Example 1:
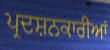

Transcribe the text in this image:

ਪ੍ਰਦਸ਼ਨਕਾਰੀਆਂ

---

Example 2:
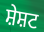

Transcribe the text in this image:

ਸ਼ੇਸ਼ਟ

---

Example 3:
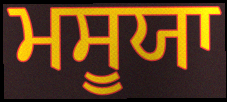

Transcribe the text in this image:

ਮਸੂਯਾ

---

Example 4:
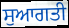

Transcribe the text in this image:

ਸੁਆਗਤੀ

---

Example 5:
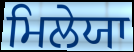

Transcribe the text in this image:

ਮਿਲੇਯਾ